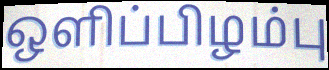
ஒளிப்பிழம்பு